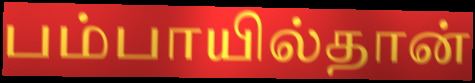
பம்பாயில்தான்